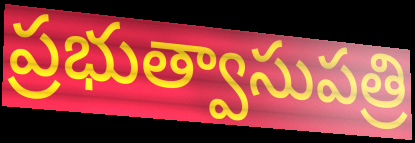
ప్రభుత్వాసుపత్రి